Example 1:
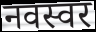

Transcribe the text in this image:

नवस्वर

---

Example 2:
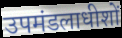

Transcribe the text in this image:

उपमंडलाधीशों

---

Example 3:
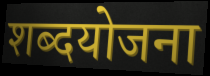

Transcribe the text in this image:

शब्दयोजना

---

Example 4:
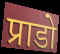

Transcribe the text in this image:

प्राडो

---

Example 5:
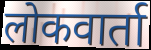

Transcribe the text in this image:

लोकवार्ता